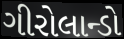
ગીરોલાન્ડો